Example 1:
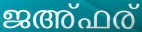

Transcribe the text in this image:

ജഅ്ഫര്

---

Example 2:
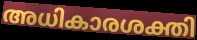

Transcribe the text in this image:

അധികാരശക്തി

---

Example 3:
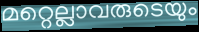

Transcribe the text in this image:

മറ്റെല്ലാവരുടെയും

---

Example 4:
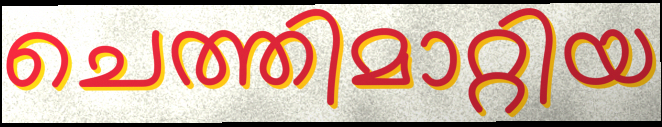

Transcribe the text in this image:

ചെത്തിമാറ്റിയ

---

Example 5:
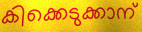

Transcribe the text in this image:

കിക്കെടുക്കാന്